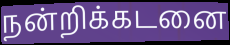
நன்றிக்கடனை